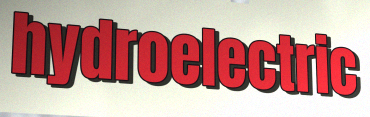
hydroelectric